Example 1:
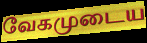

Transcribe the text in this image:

வேகமுடைய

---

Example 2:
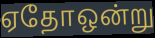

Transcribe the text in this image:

ஏதோஒன்று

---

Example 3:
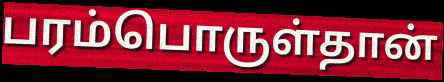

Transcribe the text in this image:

பரம்பொருள்தான்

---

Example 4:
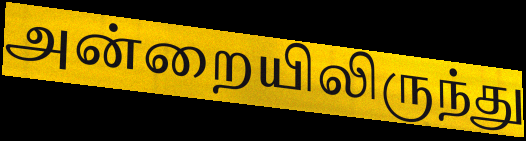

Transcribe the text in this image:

அன்றையிலிருந்து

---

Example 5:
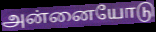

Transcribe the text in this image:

அன்னையோடு